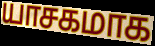
யாசகமாக